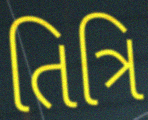
તિત્રિ